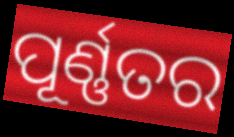
ପୂର୍ଣ୍ଣତର